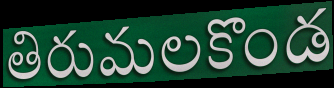
తిరుమలకొండ